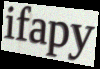
ifapy